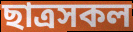
ছাত্ৰসকল